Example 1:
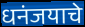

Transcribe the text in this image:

धनंजयाचे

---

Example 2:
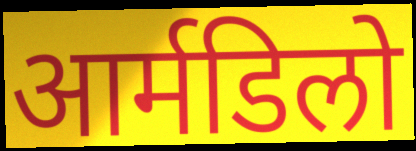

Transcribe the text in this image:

आर्मडिलो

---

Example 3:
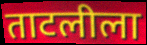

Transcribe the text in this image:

ताटलीला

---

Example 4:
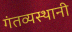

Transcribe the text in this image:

गंतव्यस्थानी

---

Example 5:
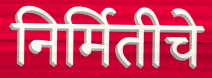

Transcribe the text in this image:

निर्मितीचे